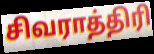
சிவராத்திரி